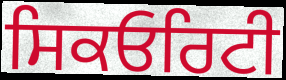
ਸਿਕਓਰਿਟੀ